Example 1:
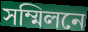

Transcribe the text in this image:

সম্মিলনে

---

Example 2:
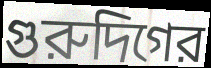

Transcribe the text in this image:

গুরুদিগের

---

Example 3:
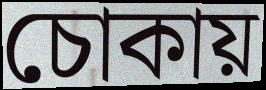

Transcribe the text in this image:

চোকায়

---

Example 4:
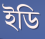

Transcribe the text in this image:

ইডি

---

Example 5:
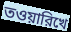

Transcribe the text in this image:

তওয়ারিখে